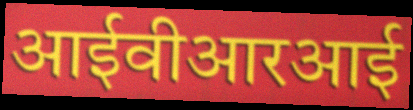
आईवीआरआई